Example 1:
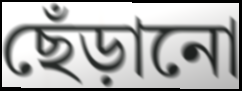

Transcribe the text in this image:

ছেঁড়ানো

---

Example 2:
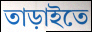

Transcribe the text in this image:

তাড়াইতে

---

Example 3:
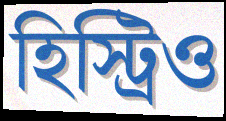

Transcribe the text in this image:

হিস্ট্রিও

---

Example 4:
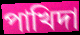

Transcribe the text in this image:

পাখিদা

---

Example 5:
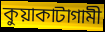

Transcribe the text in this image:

কুয়াকাটাগামী